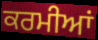
ਕਰਮੀਆਂ